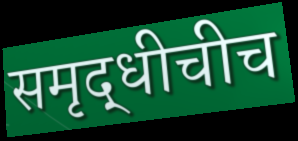
समृद्धीचीच